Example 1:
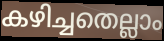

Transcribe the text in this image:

കഴിച്ചതെല്ലാം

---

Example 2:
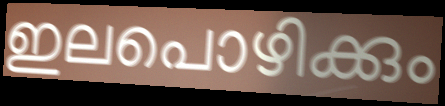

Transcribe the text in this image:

ഇലപൊഴിക്കും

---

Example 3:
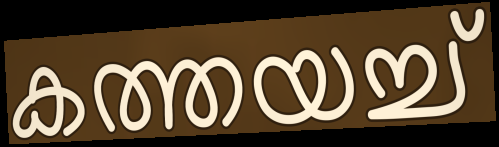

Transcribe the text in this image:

കത്തയച്ച്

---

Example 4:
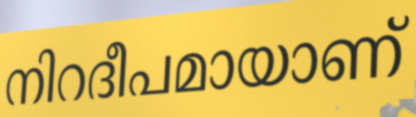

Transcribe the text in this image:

നിറദീപമായാണ്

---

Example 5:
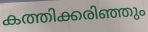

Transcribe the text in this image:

കത്തിക്കരിഞ്ഞും